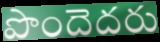
పొందెదరు